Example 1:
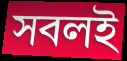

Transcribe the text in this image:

সবলই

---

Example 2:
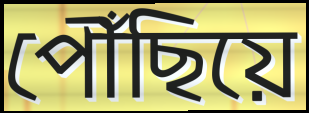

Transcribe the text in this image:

পৌঁছিয়ে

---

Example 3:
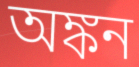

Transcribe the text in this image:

অঙ্কন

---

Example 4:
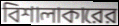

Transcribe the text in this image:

বিশালাকারের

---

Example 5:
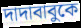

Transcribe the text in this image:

দাদাবাবুকে